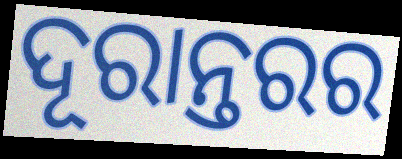
ଦୂରାନ୍ତରର